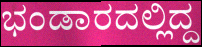
ಭಂಡಾರದಲ್ಲಿದ್ದ